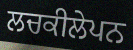
ਲਚਕੀਲੇਪਨ